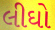
લીઘો